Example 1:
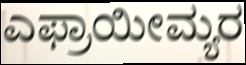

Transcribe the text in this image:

ಎಫ್ರಾಯೀಮ್ಯರ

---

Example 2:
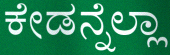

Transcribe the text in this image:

ಕೇಡನ್ನೆಲ್ಲಾ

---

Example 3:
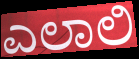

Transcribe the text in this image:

ಎಲಾಲಿ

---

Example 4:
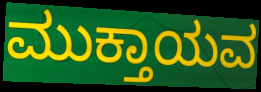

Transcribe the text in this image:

ಮುಕ್ತಾಯವ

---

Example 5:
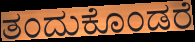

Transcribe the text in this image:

ತಂದುಕೊಂಡರೆ